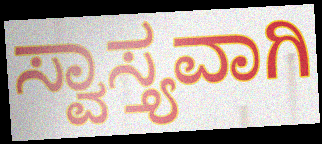
ಸ್ವಾಸ್ತ್ಯವಾಗಿ